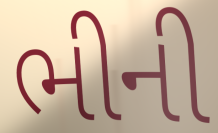
ભીની